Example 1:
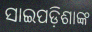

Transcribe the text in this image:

ସାଇପଡ଼ିଶାଙ୍କ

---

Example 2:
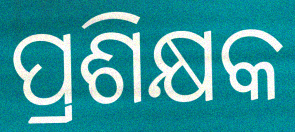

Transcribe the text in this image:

ପ୍ରଶିକ୍ଷକ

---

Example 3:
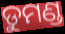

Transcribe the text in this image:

ଡୁମଣ୍ଡ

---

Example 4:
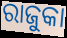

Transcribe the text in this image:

ରାଜୁକା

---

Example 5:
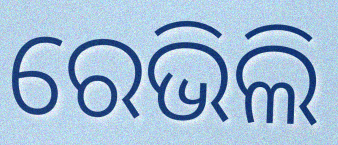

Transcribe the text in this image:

ରେଭିଲି